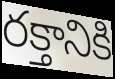
రక్తానికి